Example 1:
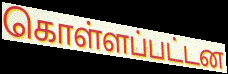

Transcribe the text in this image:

கொள்ளப்பட்டன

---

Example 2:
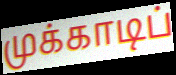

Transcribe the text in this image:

முக்காடிப்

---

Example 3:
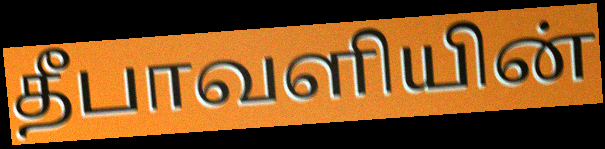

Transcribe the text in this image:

தீபாவளியின்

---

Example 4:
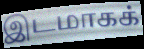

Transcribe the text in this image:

இடமாகக்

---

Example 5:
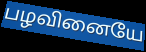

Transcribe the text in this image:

பழவினையே